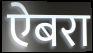
ऐबरा